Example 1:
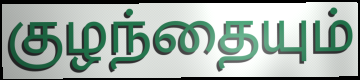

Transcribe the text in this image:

குழந்தையும்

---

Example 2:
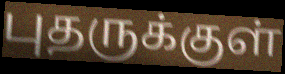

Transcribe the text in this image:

புதருக்குள்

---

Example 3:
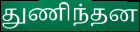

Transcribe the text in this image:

துணிந்தன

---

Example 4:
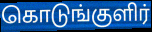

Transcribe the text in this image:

கொடுங்குளிர்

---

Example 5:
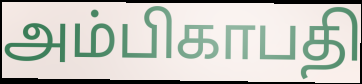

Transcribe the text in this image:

அம்பிகாபதி